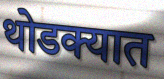
थोडक्‍यात